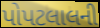
પોપટલાલની